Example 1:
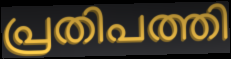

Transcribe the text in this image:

പ്രതിപത്തി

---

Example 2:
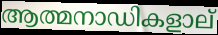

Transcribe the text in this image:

ആത്മനാഡികളാല്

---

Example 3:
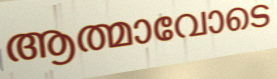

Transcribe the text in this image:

ആത്മാവോടെ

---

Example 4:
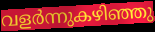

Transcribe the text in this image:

വളർന്നുകഴിഞ്ഞു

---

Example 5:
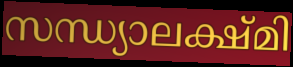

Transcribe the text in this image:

സന്ധ്യാലക്ഷ്മി